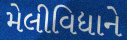
મેલીવિદ્યાને